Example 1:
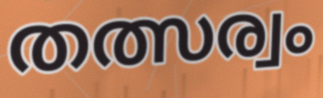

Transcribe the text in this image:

തത്സര്വം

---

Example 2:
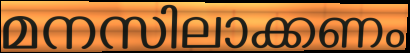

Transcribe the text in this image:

മനസിലാക്കണം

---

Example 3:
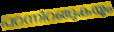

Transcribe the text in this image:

പറന്നിറങ്ങുകയും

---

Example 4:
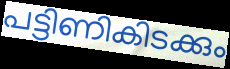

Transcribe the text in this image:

പട്ടിണികിടക്കും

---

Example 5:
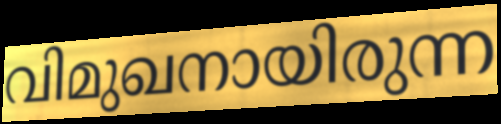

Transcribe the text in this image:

വിമുഖനായിരുന്ന